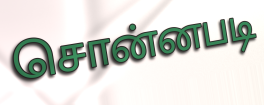
சொன்னபடி